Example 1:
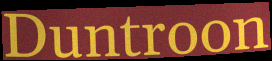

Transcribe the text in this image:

Duntroon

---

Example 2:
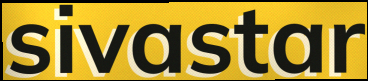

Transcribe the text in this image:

sivastar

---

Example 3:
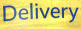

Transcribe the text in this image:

Delivery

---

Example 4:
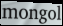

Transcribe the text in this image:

mongol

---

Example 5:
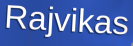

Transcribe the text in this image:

Rajvikas